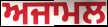
ਅਜਾਮਲ